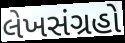
લેખસંગ્રહો